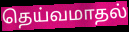
தெய்வமாதல்